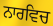
ਨਾਰਵਿਚ